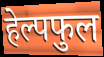
हेल्पफुल